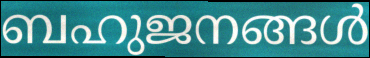
ബഹുജനങ്ങൾ